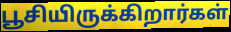
பூசியிருக்கிறார்கள்